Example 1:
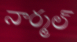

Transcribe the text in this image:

నార్మల్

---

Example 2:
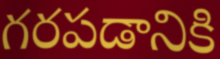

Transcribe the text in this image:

గరపడానికి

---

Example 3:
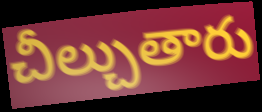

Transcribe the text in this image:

చీల్చుతారు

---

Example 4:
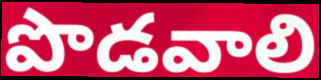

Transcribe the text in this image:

పొడవాలి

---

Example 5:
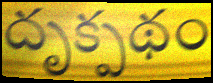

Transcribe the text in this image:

దృక్పథం